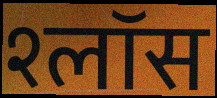
श्लॉस